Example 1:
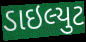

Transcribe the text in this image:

ડાઇલ્યુટ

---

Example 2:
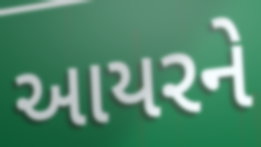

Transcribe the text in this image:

આયરને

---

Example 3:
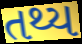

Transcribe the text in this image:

તથ્ય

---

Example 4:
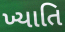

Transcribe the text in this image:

ખ્યાતિ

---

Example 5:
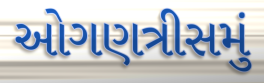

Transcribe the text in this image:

ઓગણત્રીસમું